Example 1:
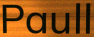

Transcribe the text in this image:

Paull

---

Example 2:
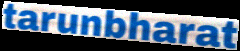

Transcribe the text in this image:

tarunbharat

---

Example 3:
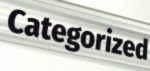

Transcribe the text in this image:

Categorized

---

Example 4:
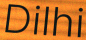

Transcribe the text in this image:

Dilhi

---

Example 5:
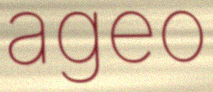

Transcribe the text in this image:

ageo